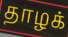
தாழக்